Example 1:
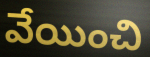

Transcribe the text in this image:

వేయించి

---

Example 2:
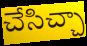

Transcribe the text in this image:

చేసిచ్చా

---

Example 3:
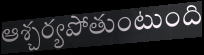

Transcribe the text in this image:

ఆశ్చర్యపోతుంటుంది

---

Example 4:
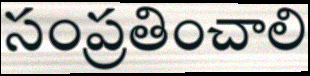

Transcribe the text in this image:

సంప్రతించాలి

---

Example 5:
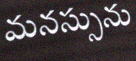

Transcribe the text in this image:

మనస్సును